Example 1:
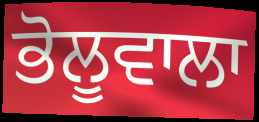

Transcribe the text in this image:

ਭੋਲੂਵਾਲਾ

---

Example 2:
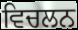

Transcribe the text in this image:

ਵਿਚਲਨ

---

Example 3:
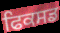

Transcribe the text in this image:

ਫਿਕਸਡ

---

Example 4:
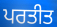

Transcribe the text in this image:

ਪਰਤੀਤ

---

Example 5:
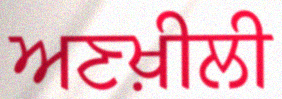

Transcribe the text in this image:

ਅਣਖ਼ੀਲੀ